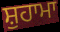
ਸ਼ੁਹਾਮਾ